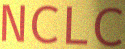
NCLC